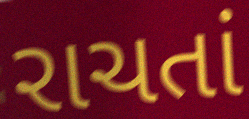
રાચતાં